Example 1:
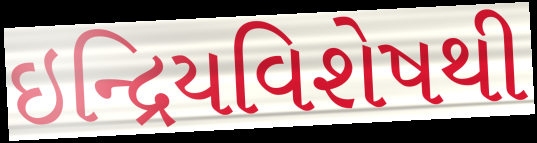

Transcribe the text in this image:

ઇન્દ્રિયવિશેષથી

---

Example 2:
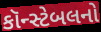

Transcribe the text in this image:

કૉન્સ્ટેબલનો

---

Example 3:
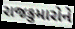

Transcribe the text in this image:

રાજકુમારોને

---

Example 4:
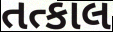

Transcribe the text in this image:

તત્કાલ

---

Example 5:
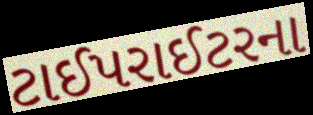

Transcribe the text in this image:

ટાઈપરાઈટરના